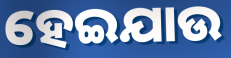
ହେଇଯାଉ